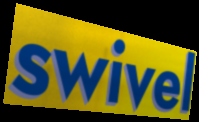
swivel